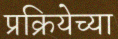
प्रक्रियेच्या